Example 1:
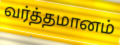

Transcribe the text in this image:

வர்த்தமானம்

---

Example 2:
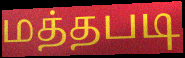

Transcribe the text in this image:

மத்தபடி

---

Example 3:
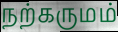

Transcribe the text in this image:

நற்கருமம்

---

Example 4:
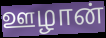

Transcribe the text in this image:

ஊழான்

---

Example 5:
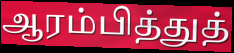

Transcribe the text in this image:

ஆரம்பித்துத்